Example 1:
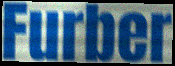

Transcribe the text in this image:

Furber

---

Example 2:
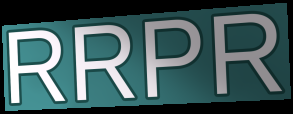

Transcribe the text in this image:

RRPR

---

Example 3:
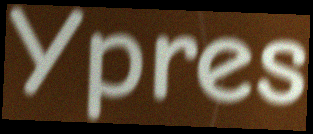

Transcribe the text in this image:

Ypres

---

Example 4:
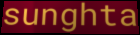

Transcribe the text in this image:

sunghta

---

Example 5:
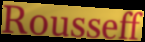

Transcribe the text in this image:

Rousseff